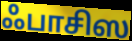
ஃபாசிஸ